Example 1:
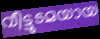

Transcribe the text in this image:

വീട്ടുടമയായ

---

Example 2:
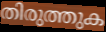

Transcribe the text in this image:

തിരുത്തുക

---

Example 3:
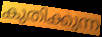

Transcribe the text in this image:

കുതിക്കുന്ന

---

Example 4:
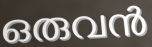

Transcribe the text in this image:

ഒരുവൻ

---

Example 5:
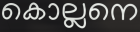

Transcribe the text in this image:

കൊല്ലനെ